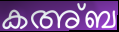
കഅ്ബ